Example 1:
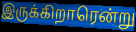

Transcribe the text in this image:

இருக்கிறாரென்று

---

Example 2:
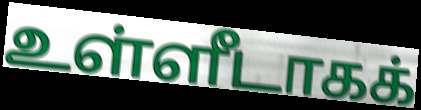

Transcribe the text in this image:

உள்ளீடாகக்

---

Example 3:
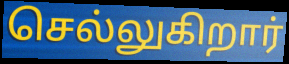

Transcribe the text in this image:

செல்லுகிறார்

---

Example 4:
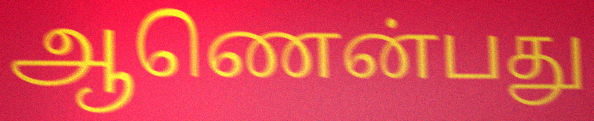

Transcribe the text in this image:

ஆணென்பது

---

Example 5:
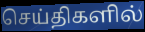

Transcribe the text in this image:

செய்திகளில்